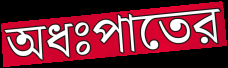
অধঃপাতের